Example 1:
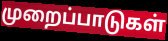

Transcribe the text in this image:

முறைப்பாடுகள்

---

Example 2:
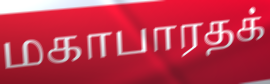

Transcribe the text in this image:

மகாபாரதக்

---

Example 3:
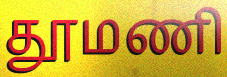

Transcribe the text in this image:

தூமணி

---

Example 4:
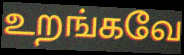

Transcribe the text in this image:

உறங்கவே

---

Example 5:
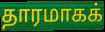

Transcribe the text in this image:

தாரமாகக்